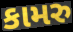
કામરુ